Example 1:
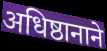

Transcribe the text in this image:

अधिष्ठानाने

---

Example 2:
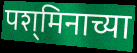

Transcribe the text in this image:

पश्मिनाच्या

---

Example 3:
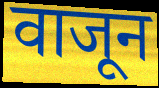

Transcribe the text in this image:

वाजून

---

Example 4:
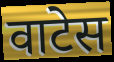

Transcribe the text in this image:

वाटेस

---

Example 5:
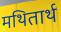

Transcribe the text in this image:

मथितार्थ